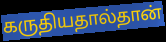
கருதியதால்தான்